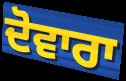
ਦੋਵਾਰਾ